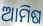
ଆମିଷ